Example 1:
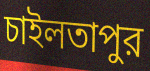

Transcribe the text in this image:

চাইলতাপুর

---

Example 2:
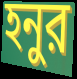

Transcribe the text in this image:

হনুর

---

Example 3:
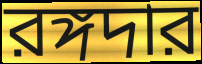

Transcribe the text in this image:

রঙ্গদার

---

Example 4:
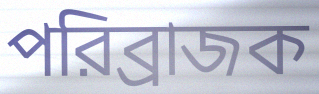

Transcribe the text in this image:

পরিব্রাজক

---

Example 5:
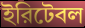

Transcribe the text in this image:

ইরিটেবল